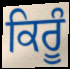
ਕਿਰੂੰ